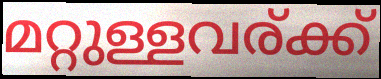
മറ്റുള്ളവര്ക്ക്